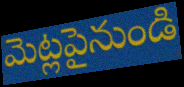
మెట్లపైనుండి